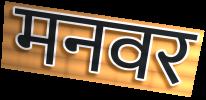
मनवर